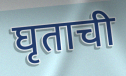
घृताची